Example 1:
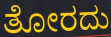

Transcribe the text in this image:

ತೋರದು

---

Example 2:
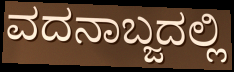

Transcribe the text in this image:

ವದನಾಬ್ಜದಲ್ಲಿ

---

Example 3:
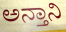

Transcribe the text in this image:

ಅನ್ತಾನಿ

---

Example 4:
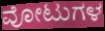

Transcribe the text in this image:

ವೋಟುಗಳ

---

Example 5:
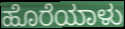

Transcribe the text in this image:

ಹೊರೆಯಾಳು